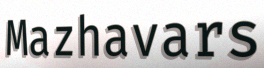
Mazhavars